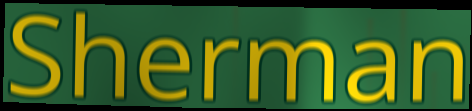
Sherman